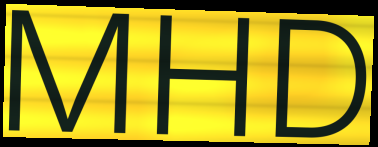
MHD